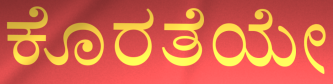
ಕೊರತೆಯೇ